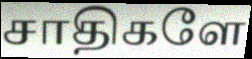
சாதிகளே